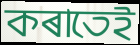
কৰাতেই